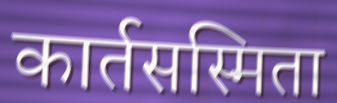
कार्तसस्मिता